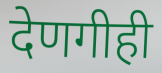
देणगीही